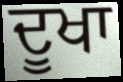
ਦੂਖਾ